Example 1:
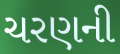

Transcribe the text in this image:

ચરણની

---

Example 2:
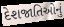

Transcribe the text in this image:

દેશજાતિઓનું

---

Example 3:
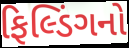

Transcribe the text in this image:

ફિલ્ડિંગનો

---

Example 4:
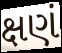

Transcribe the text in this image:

ક્ષણં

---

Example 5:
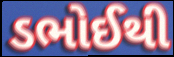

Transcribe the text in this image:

ડભોઈથી